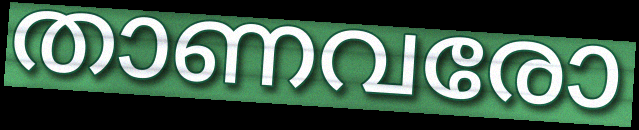
താണവരോ